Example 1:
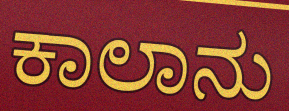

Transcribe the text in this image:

ಕಾಲಾನು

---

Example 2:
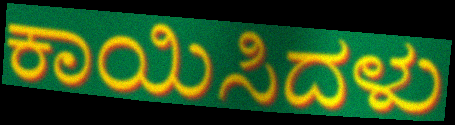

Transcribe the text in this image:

ಕಾಯಿಸಿದಳು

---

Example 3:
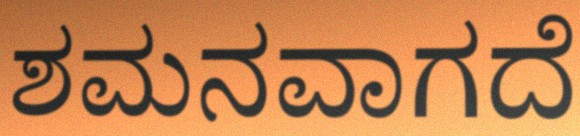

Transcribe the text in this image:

ಶಮನವಾಗದೆ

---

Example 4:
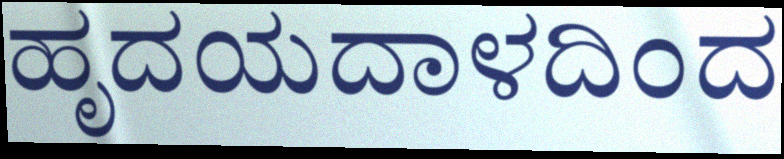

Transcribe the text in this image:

ಹೃದಯದಾಳದಿಂದ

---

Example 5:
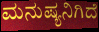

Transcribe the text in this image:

ಮನುಷ್ಯನಿಗಿದೆ